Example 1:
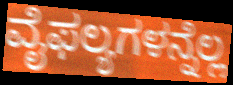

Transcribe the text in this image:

ವೈಫಲ್ಯಗಳನ್ನೆಲ್ಲ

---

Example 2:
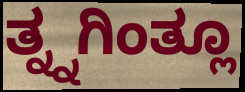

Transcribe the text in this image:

ತ್ನ್ನಗಿಂತ್ಲೂ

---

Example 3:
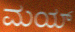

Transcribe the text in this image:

ಮಯ್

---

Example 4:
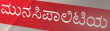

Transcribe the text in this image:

ಮುನಸಿಪಾಲಿಟಿಯ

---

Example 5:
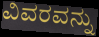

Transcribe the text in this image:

ವಿವರವನ್ನು